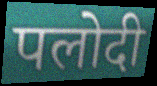
पलोदी